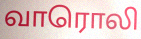
வாரொலி